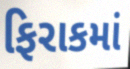
ફિરાકમાં